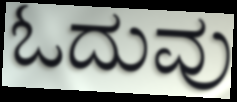
ಓದುವು